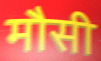
मौसी